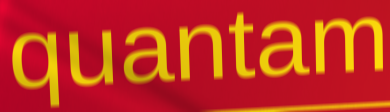
quantam